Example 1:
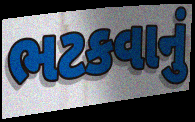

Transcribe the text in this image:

ભટકવાનું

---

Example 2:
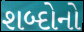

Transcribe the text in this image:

શબ્દોનો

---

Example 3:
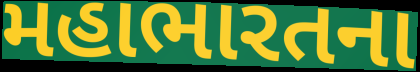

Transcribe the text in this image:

મહાભારતના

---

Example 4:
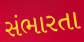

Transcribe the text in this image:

સંભારતા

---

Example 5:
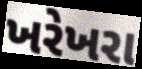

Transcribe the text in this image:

ખરેખરા